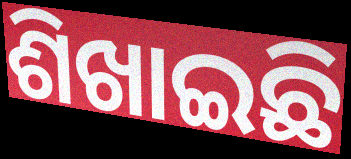
ଶିଖାଇଛି